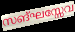
സങ്ഘസ്സേവ